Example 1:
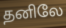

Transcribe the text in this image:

தனிலே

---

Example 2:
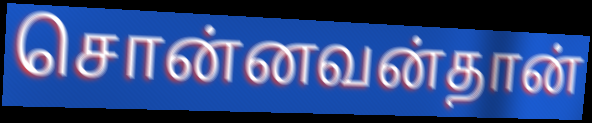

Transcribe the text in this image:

சொன்னவன்தான்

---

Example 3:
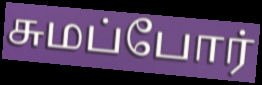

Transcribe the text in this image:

சுமப்போர்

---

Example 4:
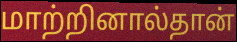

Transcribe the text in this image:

மாற்றினால்தான்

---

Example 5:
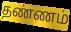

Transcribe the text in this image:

தண்ணம்